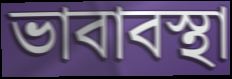
ভাবাবস্থা